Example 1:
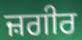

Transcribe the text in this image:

ਜ਼ਗੀਰ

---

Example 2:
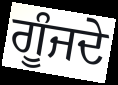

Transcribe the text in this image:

ਗੂੰਜਦੇ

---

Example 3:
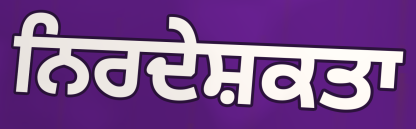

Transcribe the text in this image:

ਨਿਰਦੇਸ਼ਕਤਾ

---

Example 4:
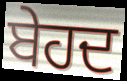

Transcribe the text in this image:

ਬੇਹਦ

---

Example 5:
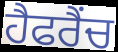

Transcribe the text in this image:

ਹੈਫਰੈਂਚ